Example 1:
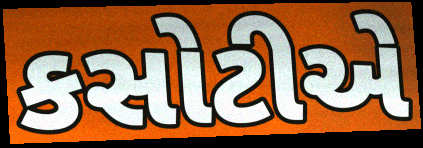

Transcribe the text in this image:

કસોટીએ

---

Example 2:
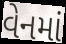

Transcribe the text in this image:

વેનમાં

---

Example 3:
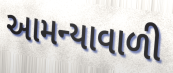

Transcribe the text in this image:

આમન્યાવાળી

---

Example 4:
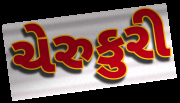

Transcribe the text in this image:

ચેરુકુરી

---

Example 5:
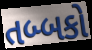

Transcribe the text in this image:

તબ્બકો